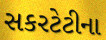
સકરટેટીના